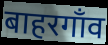
बाहरगाँव